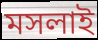
মসলাই